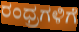
ರಂಧ್ರಗಳಿಗೆ